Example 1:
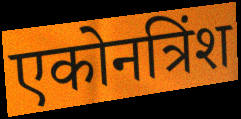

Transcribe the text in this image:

एकोनत्रिंश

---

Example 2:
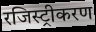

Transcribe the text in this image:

रजिस्ट्रीकरण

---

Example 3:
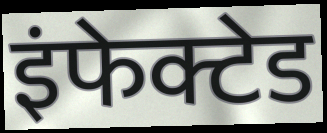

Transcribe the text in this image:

इंफेक्टेड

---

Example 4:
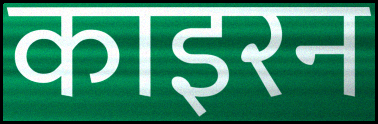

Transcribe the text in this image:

काइरन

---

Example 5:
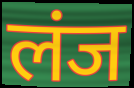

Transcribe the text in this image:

लंज